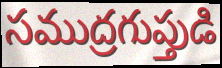
సముద్రగుప్తుడి